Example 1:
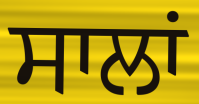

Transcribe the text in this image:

ਸਾਲਾਂ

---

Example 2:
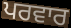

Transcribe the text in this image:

ਪਰਵਾਰ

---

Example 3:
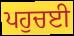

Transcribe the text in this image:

ਪਹੁਚਈ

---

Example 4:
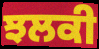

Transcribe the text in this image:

ਝਲਕੀ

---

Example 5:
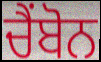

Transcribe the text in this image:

ਚੈਂਬੋਨ